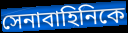
সেনাবাহিনিকে